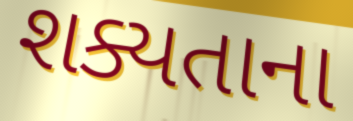
શક્યતાના